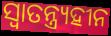
ସ୍ଵାତନ୍ତ୍ର୍ୟହୀନ